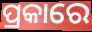
ପ୍ରକାରେ